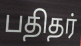
பதிதர்